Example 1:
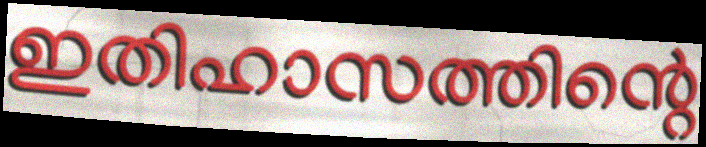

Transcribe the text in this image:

ഇതിഹാസത്തിന്റെ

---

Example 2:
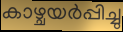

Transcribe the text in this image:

കാഴ്ചയർപ്പിച്ചു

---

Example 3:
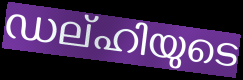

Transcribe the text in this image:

ഡല്ഹിയുടെ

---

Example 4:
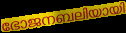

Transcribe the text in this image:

ഭോജനബലിയായി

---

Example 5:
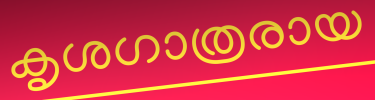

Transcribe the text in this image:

കൃശഗാത്രരായ